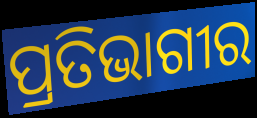
ପ୍ରତିଭାଗୀର